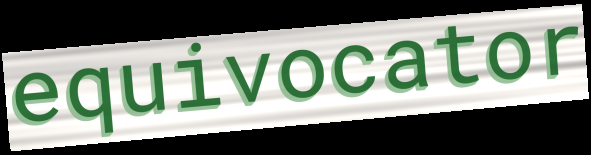
equivocator